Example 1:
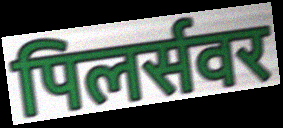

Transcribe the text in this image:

पिलर्सवर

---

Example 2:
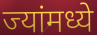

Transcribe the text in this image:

ज्यांमध्ये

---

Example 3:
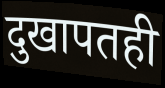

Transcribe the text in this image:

दुखापतही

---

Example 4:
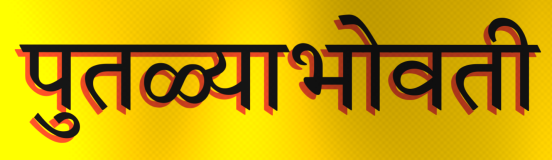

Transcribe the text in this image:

पुतळ्याभोवती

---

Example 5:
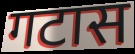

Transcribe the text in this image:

गटास